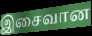
இசைவான